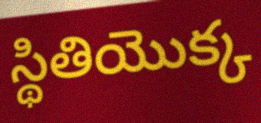
స్థితియొక్క